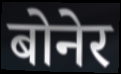
बोनेर